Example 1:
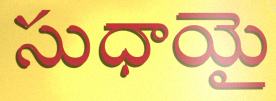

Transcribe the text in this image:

సుధాయై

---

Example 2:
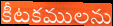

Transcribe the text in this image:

కీటకములను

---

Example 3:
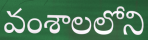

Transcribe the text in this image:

వంశాలలోని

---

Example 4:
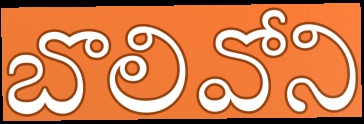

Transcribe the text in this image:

బొలివోని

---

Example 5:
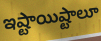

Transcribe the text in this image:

ఇష్టాయిష్టాలూ